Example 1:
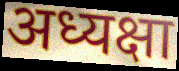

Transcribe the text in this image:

अध्यक्षा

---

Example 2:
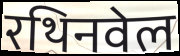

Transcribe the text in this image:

रथिनवेल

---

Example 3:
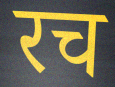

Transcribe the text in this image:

रच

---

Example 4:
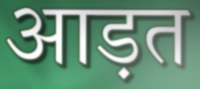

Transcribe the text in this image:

आड़त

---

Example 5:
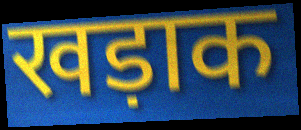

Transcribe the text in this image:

खड़ाक